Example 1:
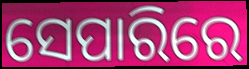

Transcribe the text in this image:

ସେପାରିରେ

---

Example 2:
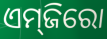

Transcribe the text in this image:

ଏମ୍‌ଜିରୋ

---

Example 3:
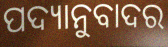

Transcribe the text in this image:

ପଦ୍ୟାନୁବାଦର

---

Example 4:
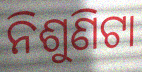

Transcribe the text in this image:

ନିଶୁଣିଟା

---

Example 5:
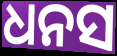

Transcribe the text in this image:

ଧନସ